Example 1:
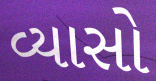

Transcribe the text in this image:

વ્યાસો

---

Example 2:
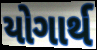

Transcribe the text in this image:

યોગાર્થ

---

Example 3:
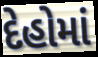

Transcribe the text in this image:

દેહોમાં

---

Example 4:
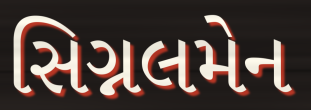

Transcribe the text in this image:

સિગ્નલમેન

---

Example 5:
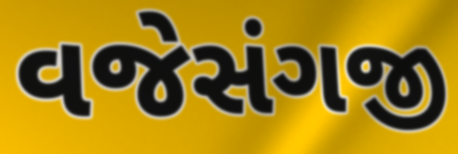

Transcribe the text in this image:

વજેસંગજી